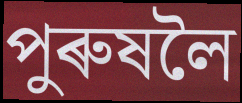
পুৰুষলৈ